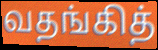
வதங்கித்